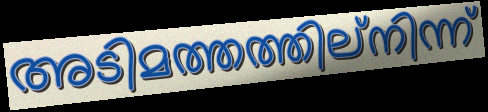
അടിമത്തത്തില്നിന്ന്